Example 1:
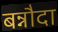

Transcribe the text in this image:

बन्नौदा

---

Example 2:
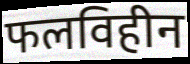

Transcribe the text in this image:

फलविहीन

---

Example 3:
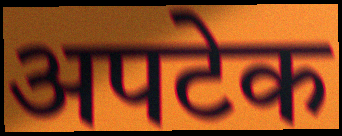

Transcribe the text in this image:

अपटेक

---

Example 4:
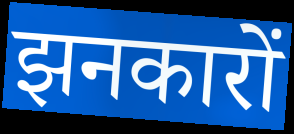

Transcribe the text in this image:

झनकारों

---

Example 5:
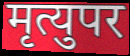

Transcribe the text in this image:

मृत्युपर